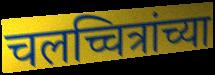
चलच्चित्रांच्या